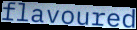
flavoured